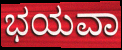
ಭಯವಾ